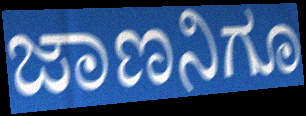
ಜಾಣನಿಗೂ